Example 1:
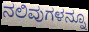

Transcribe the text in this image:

ನಲಿವುಗಳನ್ನೂ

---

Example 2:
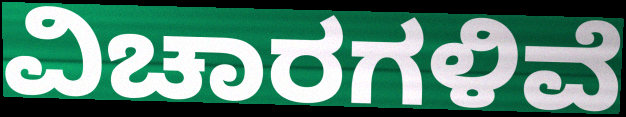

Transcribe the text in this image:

ವಿಚಾರಗಳಿವೆ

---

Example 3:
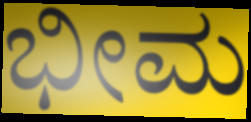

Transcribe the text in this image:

ಭೀಮ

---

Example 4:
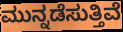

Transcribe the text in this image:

ಮುನ್ನಡೆಸುತ್ತಿವೆ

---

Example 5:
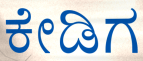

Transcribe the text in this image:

ಕೇಡಿಗ